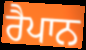
ਰੈਪਾਨ